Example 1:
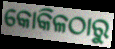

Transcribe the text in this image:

କୋକିଳଠାରୁ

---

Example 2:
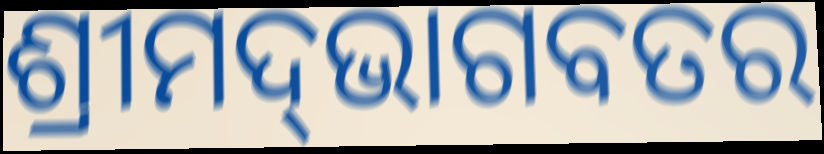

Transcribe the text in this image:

ଶ୍ରୀମଦ୍‌ଭାଗବତର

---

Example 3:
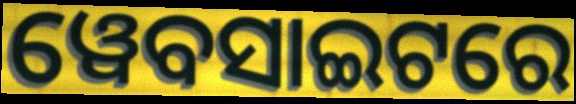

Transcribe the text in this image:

ୱେବସାଇଟରେ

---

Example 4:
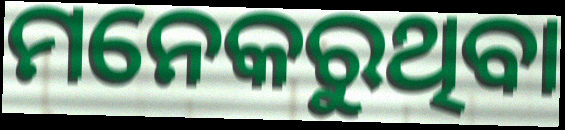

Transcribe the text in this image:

ମନେକରୁଥିବା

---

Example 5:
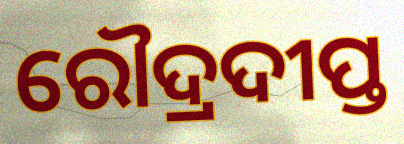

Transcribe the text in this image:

ରୌଦ୍ରଦୀପ୍ତ